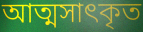
আত্মসাৎকৃত